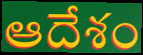
ఆదేశం